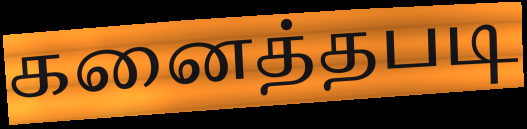
கனைத்தபடி